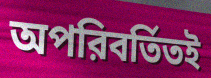
অপরিবর্তিতই